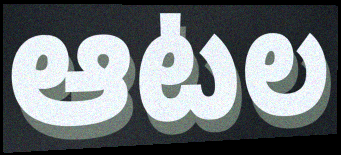
ఆటల